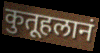
कुतूहलानं